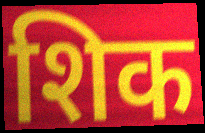
शिक